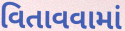
વિતાવવામાં